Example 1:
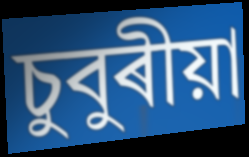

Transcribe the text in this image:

চুবুৰীয়া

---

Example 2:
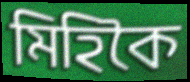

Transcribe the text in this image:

মিহিকৈ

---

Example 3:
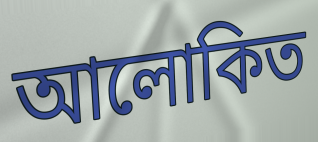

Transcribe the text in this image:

আলোকিত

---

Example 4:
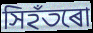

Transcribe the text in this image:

সিহঁতৰো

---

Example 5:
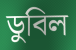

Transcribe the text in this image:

ডুবিল